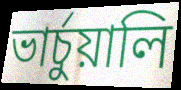
ভার্চুয়ালি